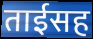
ताईसह